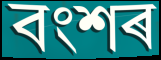
বংশৰ